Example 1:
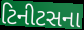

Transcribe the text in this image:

ટિનીટસના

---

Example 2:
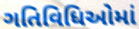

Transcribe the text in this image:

ગતિવિધિઓમાં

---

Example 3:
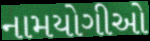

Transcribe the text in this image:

નામયોગીઓ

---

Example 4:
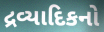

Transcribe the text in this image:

દ્રવ્યાદિકનો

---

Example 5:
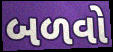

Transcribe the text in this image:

બળવો